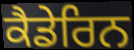
ਕੈਡੇਰਿਨ